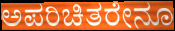
ಅಪರಿಚಿತರೇನೂ